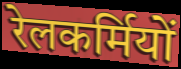
रेलकर्मियों